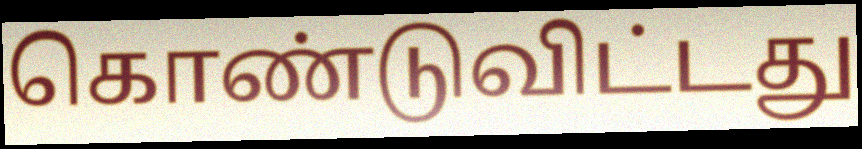
கொண்டுவிட்டது